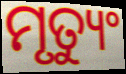
ମୃତ୍ୟୁଂ